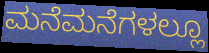
ಮನೆಮನೆಗಳಲ್ಲೂ